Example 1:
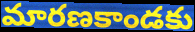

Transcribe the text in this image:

మారణకాండకు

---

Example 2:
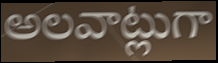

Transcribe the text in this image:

అలవాట్లుగా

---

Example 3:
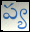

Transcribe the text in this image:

ప్య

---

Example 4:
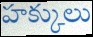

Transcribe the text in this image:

హక్కులు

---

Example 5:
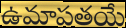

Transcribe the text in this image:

ఉమాపతయే